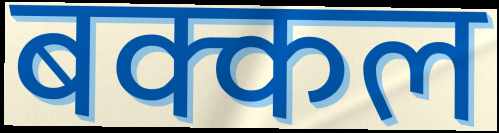
बक्कल